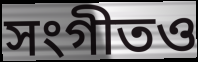
সংগীতও